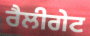
ਰੈਲੀਗੇਟ